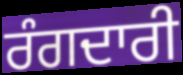
ਰੰਗਦਾਰੀ